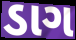
ડાગ